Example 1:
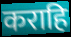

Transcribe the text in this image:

कराहि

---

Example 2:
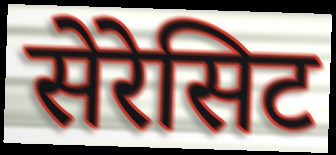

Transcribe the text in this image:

सेरेसिट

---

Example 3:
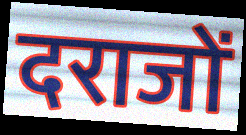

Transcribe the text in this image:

दराजों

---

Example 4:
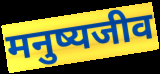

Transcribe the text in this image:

मनुष्यजीव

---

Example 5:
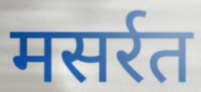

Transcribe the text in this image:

मसर्रत